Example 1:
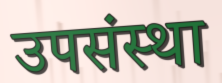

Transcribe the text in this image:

उपसंस्था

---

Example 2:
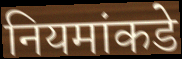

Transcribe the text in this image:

नियमांकडे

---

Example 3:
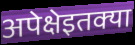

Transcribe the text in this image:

अपेक्षेइतक्या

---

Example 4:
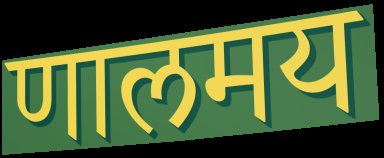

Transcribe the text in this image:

णालमय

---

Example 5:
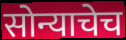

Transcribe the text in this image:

सोन्याचेच